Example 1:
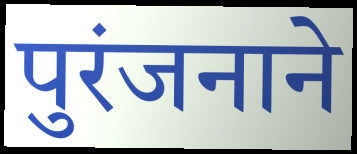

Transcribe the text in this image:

पुरंजनाने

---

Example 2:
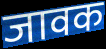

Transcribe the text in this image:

जावक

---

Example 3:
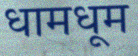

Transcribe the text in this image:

धामधूम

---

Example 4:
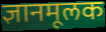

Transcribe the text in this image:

ज्ञानमूलक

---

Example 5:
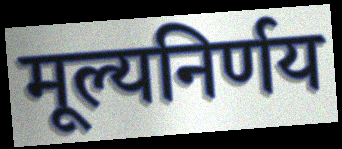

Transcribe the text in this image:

मूल्यनिर्णय